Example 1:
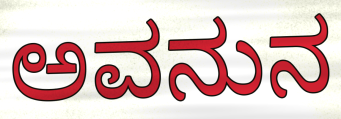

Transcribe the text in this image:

ಅವನುನ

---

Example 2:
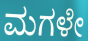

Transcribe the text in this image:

ಮಗಳೇ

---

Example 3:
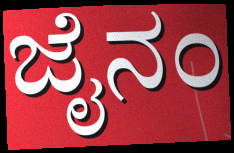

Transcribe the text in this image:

ಜೈನಂ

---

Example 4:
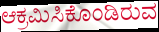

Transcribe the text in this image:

ಆಕ್ರಮಿಸಿಕೊಂಡಿರುವ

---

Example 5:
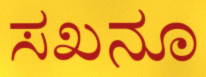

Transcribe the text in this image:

ಸಖನೂ